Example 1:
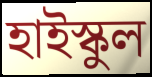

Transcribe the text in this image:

হাইস্কুল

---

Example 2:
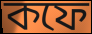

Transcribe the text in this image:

কফে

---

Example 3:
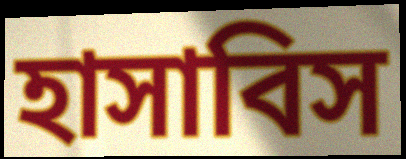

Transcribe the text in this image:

হাসাবিস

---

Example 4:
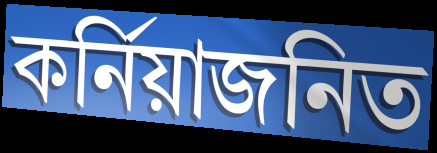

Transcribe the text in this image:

কর্নিয়াজনিত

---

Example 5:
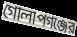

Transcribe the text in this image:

গোলাপগঞ্জের